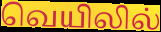
வெயிலில்